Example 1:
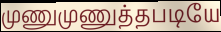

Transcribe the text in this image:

முணுமுணுத்தபடியே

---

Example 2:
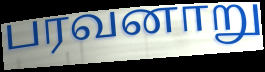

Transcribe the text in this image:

பரவனாறு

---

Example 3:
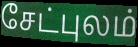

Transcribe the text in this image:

சேட்புலம்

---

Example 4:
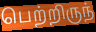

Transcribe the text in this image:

பெற்றிருந்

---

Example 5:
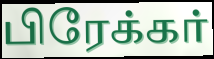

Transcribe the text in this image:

பிரேக்கர்